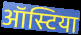
ऑस्टिया